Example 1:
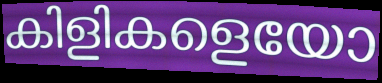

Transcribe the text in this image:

കിളികളെയോ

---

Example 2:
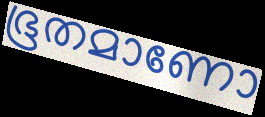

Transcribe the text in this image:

ഭൂതമാണോ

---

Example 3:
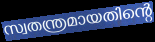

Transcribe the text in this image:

സ്വതന്ത്രമായതിന്റെ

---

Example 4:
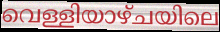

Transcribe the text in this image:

വെള്ളിയാഴ്ചയിലെ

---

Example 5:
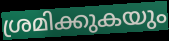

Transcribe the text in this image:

ശ്രമിക്കുകയും